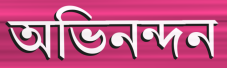
অভিনন্দন